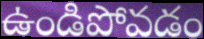
ఉండిపోవడం